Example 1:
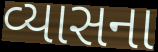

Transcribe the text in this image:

વ્યાસના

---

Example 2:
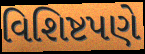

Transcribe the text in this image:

વિશિષ્ટપણે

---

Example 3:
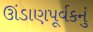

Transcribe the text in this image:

ઊંડાણપૂર્વકનું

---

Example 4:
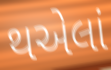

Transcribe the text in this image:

થએલાં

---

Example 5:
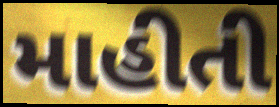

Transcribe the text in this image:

માહીતી